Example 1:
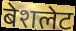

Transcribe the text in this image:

बेशलेट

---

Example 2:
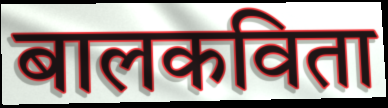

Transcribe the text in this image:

बालकविता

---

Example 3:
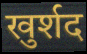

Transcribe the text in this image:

खुर्शद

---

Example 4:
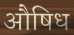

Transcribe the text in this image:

औषिध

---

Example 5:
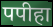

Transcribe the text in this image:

पपीहा